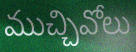
ముచ్చివోలు